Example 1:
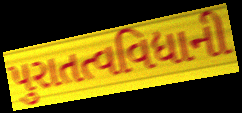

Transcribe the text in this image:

પુરાતત્વવિદ્યાની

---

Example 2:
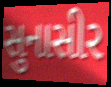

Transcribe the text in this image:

સુનાસીર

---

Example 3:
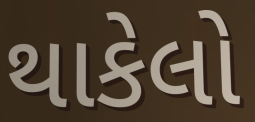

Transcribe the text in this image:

થાકેલો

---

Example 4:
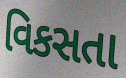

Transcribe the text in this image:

વિકસતા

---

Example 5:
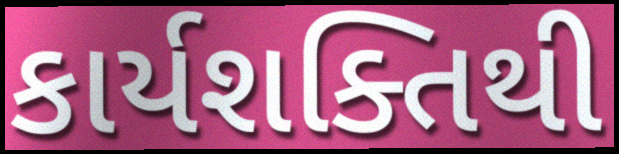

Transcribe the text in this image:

કાર્યશક્તિથી